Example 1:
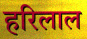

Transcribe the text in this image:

हरिलाल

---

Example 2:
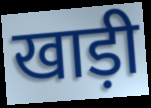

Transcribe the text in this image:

खाड़ी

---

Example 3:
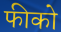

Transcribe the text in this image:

फीको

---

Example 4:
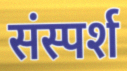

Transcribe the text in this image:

संस्पर्श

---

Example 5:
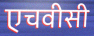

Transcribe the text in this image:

एचवीसी